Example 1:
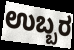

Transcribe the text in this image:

ಉಬ್ಬರ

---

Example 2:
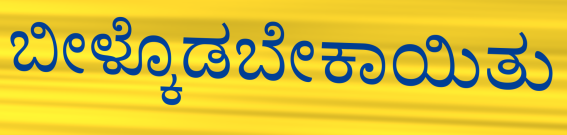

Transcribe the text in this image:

ಬೀಳ್ಕೊಡಬೇಕಾಯಿತು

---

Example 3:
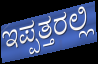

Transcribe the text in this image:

ಇಪ್ಪತ್ತರಲ್ಲಿ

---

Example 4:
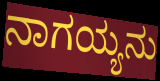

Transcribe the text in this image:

ನಾಗಯ್ಯನು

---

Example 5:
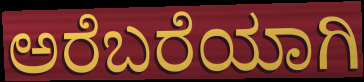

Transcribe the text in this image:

ಅರೆಬರೆಯಾಗಿ